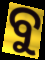
ବୁ